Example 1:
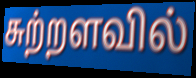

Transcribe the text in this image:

சுற்றளவில்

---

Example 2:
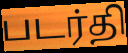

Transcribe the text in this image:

படர்தி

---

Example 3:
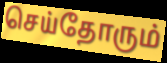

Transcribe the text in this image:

செய்தோரும்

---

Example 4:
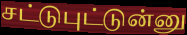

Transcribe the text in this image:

சட்டுபுட்டுன்னு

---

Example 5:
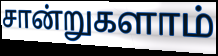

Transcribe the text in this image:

சான்றுகளாம்